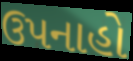
ઉપનાહો